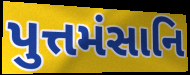
પુત્તમંસાનિ